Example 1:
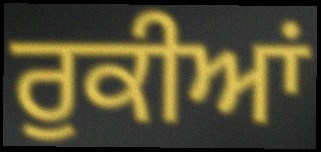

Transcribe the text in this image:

ਰੁਕੀਆਂ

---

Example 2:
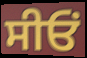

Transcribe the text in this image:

ਸੀਓਂ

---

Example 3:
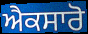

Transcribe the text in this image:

ਐਕਸਾਰੋ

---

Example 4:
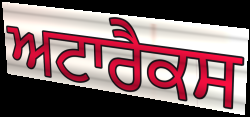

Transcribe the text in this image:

ਅਟਾਰੈਕਸ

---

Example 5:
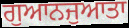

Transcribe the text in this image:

ਗੁਆਨਜੁਆਤਾ